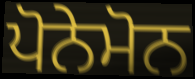
ਪੋਨੇਮੋਨ